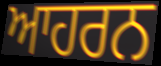
ਆਹਰਨ